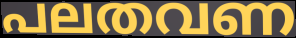
പലതവണ